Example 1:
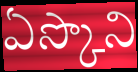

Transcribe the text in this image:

ఏస్కొని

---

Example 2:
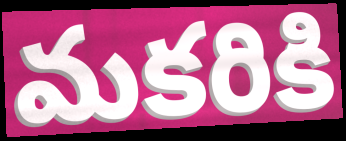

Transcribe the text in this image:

మకరికి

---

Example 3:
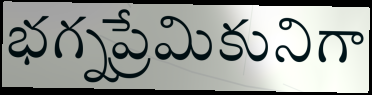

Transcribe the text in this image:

భగ్నప్రేమికునిగా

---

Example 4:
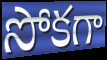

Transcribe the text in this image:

సోకగా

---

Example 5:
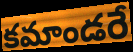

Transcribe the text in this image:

కమాండరే